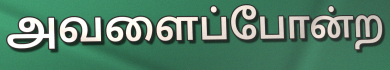
அவளைப்போன்ற